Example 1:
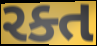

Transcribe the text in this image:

રક્ત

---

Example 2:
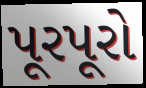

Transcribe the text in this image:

પૂરપૂરો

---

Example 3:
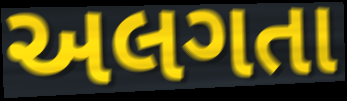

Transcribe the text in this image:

અલગતા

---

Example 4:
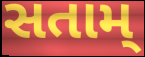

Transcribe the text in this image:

સતામ્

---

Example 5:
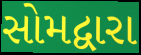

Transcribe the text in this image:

સોમદ્વારા